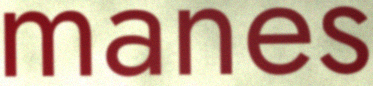
manes